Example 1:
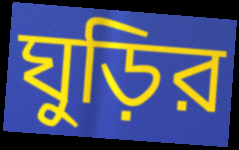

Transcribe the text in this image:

ঘুড়ির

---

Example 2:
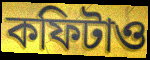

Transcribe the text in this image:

কফিটাও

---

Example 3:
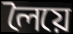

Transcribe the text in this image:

লৈয়ে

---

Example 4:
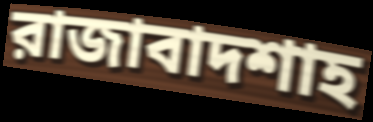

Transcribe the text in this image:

রাজাবাদশাহ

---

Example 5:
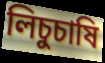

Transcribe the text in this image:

লিচুচাষি